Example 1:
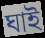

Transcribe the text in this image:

ঘাই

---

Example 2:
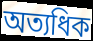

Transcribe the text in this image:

অত্যধিক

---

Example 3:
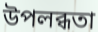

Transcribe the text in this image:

উপলব্ধতা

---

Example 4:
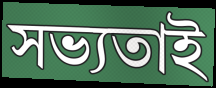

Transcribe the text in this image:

সভ্যতাই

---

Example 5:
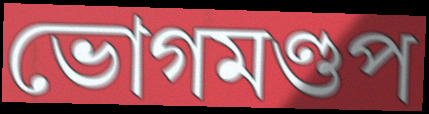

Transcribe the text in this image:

ভোগমণ্ডপ